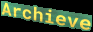
Archieve